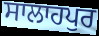
ਸਾਲਾਹਪੁਰ